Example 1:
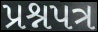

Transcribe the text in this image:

પ્રશ્નપત્ર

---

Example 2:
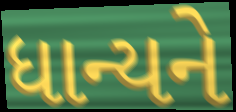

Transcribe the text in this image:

ધાન્યને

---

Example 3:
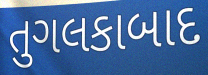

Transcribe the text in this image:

તુગલકાબાદ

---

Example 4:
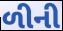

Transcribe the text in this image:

ળીની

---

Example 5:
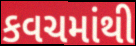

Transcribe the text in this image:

કવચમાંથી